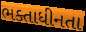
ભક્તાધીનતા